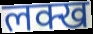
लक्ख